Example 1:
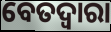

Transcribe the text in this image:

ବେତଦ୍ୱାରା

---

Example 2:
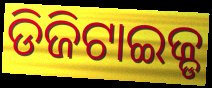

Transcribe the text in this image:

ଡିଜିଟାଇଜ୍ଡ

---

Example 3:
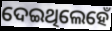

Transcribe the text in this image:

ଦେଇଥିଲେହେଁ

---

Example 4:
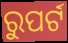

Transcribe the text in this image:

ରୁପର୍ଟ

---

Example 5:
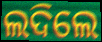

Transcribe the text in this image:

ଲଦିଲେ